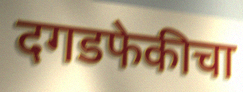
दगडफेकीचा